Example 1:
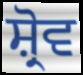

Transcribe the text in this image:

ਸ਼੍ਰੋਵ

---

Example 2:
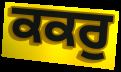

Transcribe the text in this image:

ਕਕਰੁ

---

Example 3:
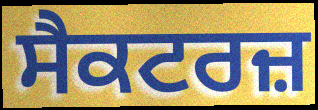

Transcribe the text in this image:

ਸੈਕਟਰਜ਼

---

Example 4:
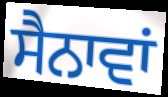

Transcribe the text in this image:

ਸੈਨਾਵਾਂ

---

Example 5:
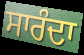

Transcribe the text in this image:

ਸਾਰੰਦਾ